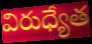
విరుధ్యేత